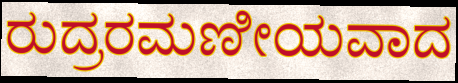
ರುದ್ರರಮಣೀಯವಾದ